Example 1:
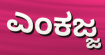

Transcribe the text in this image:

ಎಂಕಜ್ಜ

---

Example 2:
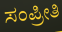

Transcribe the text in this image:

ಸಂಪ್ರೀತಿ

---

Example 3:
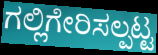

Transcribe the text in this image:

ಗಲ್ಲಿಗೇರಿಸಲ್ಪಟ್ಟ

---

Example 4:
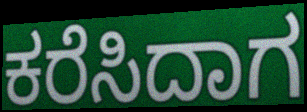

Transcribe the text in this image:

ಕರೆಸಿದಾಗ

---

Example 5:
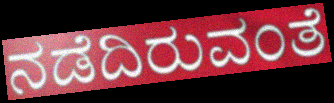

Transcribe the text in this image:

ನಡೆದಿರುವಂತೆ